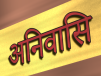
अनिवासि